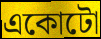
একোটো